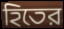
হিতের